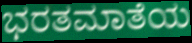
ಭರತಮಾತೆಯ